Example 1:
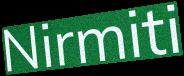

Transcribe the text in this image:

Nirmiti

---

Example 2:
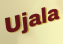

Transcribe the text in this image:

Ujala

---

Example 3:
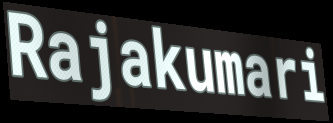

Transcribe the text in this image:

Rajakumari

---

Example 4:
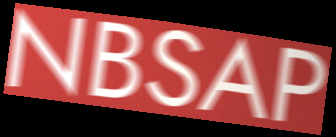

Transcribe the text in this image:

NBSAP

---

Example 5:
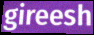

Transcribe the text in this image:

gireesh